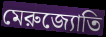
মেরুজ্যোতি